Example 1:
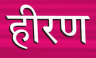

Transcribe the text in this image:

हीरण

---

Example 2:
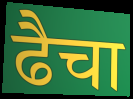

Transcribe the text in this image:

ढैचा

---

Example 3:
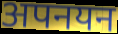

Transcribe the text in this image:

अपनयन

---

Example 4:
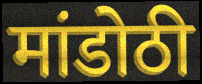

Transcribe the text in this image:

मांडोठी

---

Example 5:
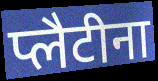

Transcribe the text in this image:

प्लैटीना